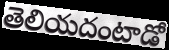
తెలియదంటాడో